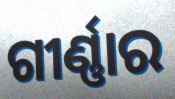
ଗୀର୍ଣ୍ଣାର